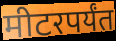
मीटरपर्यंत